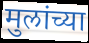
मुलांच्या